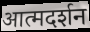
आत्मदर्शन